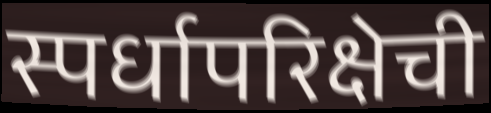
स्पर्धापरिक्षेची